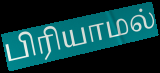
பிரியாமல்